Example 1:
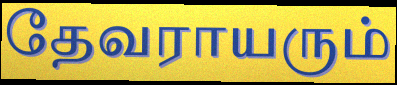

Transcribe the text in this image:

தேவராயரும்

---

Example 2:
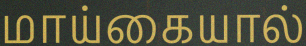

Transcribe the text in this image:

மாய்கையால்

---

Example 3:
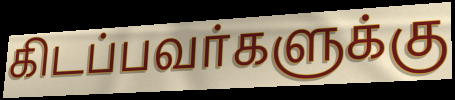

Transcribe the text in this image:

கிடப்பவர்களுக்கு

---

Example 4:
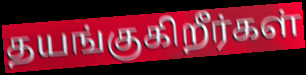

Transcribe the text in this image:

தயங்குகிறீர்கள்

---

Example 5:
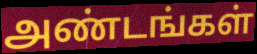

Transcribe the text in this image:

அண்டங்கள்